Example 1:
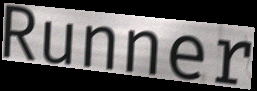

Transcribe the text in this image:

Runner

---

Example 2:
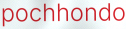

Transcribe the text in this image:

pochhondo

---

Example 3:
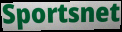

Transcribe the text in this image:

Sportsnet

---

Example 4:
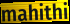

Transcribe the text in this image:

mahithi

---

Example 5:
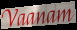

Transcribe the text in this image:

Vaanam